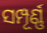
ସମ୍ପୂର୍ଣ୍ଣ